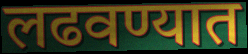
लढवण्यात